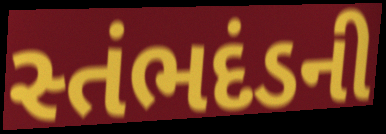
સ્તંભદંડની